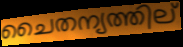
ചൈതന്യത്തില്